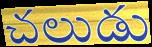
చలుడు